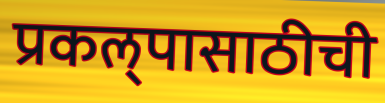
प्रकल्पासाठीची